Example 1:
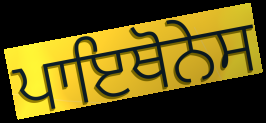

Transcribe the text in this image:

ਪਾਇਥੋਨੇਸ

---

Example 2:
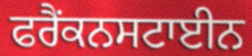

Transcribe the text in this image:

ਫਰੈਂਕਨਸਟਾਈਨ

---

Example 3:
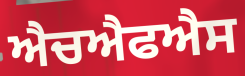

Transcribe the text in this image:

ਐਚਐਫਐਸ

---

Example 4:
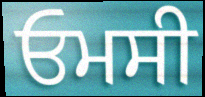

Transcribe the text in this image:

ਓਮਸੀ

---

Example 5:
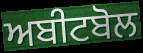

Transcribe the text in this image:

ਅਬੀਟਬੋਲ